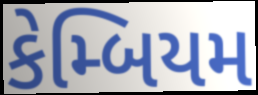
કેમ્બિયમ